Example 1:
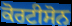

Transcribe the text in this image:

ਕੋਰਟੀਸੋਨ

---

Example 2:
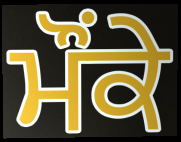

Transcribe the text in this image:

ਮੌੰਕੇ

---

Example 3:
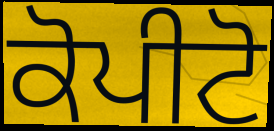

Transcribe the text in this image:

ਕੋਪੀਟੋ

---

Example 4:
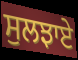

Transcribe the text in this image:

ਸੁਲਝਾਏ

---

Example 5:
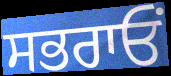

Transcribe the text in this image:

ਸਭਰਾਓਂ